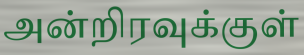
அன்றிரவுக்குள்